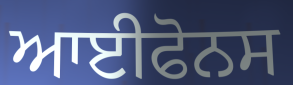
ਆਈਫੋਨਸ